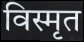
विस्मृत